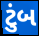
ટુંબ